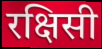
रक्षिसी